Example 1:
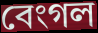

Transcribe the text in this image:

বেংগল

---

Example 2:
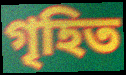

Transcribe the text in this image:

গৃহিত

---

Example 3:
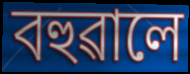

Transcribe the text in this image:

বহুৱালে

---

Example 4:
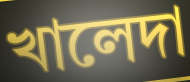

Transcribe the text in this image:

খালেদা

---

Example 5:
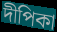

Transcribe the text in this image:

দীপিকা